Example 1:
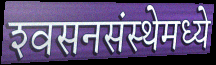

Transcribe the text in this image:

श्वसनसंस्थेमध्ये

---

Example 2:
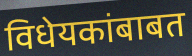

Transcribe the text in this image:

विधेयकांबाबत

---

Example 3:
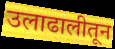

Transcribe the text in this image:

उलाढालीतून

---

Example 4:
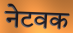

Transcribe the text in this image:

नेटवक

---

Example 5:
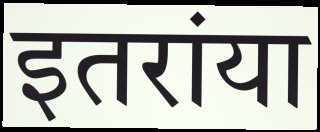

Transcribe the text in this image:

इतरांया